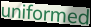
uniformed